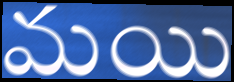
మయి